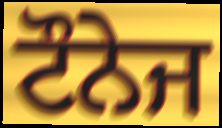
ਟੌਨੇਜ